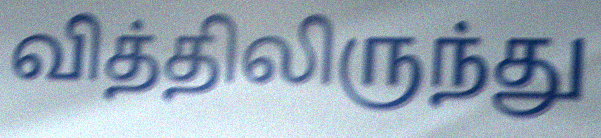
வித்திலிருந்து